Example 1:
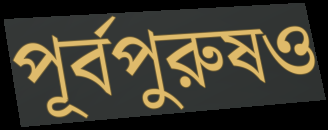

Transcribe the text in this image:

পূর্বপুরুষও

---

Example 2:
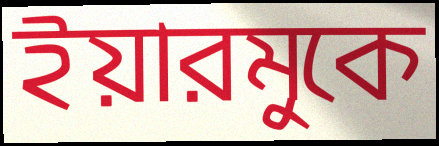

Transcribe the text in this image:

ইয়ারমুকে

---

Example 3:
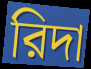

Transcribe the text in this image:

রিদা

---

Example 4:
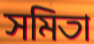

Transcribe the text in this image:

সমিতা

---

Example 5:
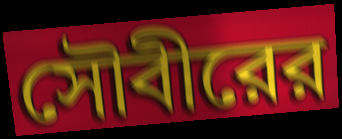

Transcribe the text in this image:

সৌবীরের